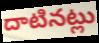
దాటినట్లు